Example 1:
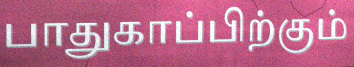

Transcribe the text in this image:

பாதுகாப்பிற்கும்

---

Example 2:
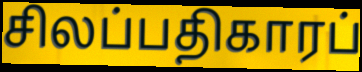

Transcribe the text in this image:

சிலப்பதிகாரப்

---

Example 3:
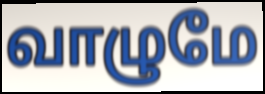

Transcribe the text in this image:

வாழுமே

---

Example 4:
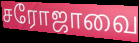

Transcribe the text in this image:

சரோஜாவை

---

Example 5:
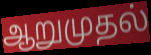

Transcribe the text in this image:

ஆறுமுதல்